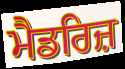
ਮੈਡਰਿਜ਼